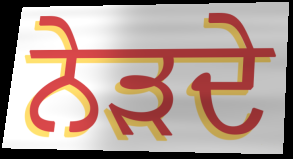
ਨੇੜਦੇ